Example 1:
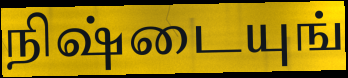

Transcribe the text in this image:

நிஷ்டையுங்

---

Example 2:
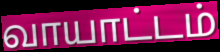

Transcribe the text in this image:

வாயாட்டம்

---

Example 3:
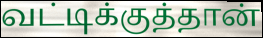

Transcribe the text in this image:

வட்டிக்குத்தான்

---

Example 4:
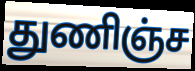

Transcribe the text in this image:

துணிஞ்ச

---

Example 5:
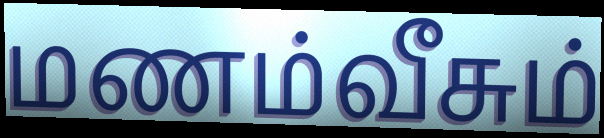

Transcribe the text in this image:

மணம்வீசும்